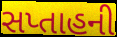
સપ્તાહની